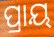
ପ୍ରାୟ